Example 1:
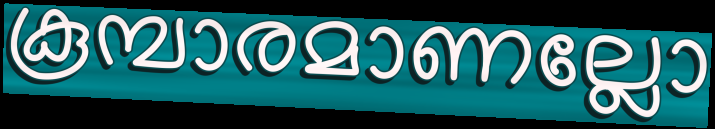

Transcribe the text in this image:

കൂമ്പാരമാണല്ലോ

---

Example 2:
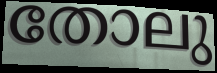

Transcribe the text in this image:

തോലു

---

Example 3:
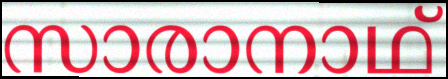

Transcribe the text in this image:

സാരാനാഥ്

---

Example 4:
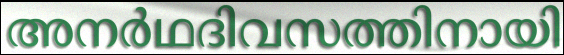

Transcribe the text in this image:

അനർഥദിവസത്തിനായി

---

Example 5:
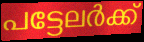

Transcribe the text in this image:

പട്ടേലർക്ക്